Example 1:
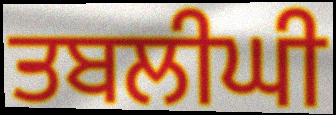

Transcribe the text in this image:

ਤਬਲੀਘੀ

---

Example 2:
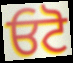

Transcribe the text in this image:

ਓਟੋ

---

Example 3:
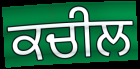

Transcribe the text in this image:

ਕਚੀਲ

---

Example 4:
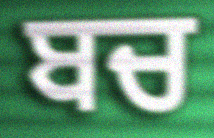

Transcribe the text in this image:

ਬਚ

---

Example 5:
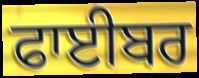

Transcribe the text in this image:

ਫਾਈਬਰ